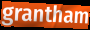
grantham